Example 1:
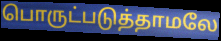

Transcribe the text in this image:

பொருட்படுத்தாமலே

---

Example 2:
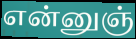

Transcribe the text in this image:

என்னுஞ்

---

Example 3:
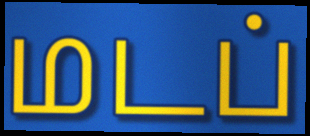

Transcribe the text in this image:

மடப்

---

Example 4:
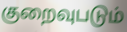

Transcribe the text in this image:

குறைவுபடும்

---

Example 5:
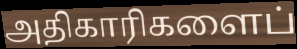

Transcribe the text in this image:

அதிகாரிகளைப்